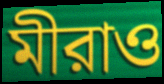
মীরাও